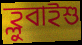
হ্লুবাইশু